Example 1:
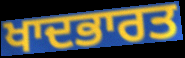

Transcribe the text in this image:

ਖਾਦਭਾਰਤ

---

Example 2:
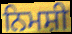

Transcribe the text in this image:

ਨਿਮਸ਼ੀ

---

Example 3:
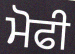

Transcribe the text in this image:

ਮੋਫੀ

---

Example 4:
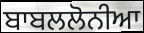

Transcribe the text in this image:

ਬਾਬਲਲੋਨੀਆ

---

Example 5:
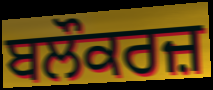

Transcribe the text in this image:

ਬਲੌਕਰਜ਼